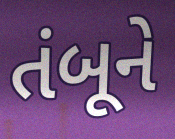
તંબૂને